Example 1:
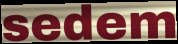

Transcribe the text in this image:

sedem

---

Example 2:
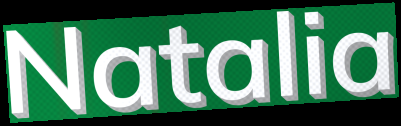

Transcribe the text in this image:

Natalia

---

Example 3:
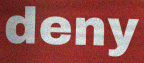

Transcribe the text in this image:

deny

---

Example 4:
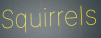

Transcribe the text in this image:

Squirrels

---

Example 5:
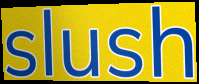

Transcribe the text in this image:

slush